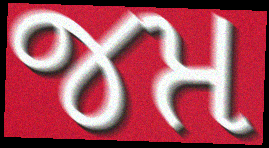
જપ્ત